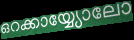
ഒറക്കായ്യ്യോലോ